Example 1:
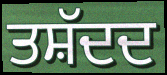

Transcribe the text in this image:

ਤਸ਼ੱਦਦ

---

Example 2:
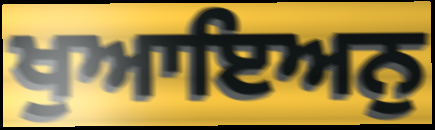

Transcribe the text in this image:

ਖੁਆਇਅਨੁ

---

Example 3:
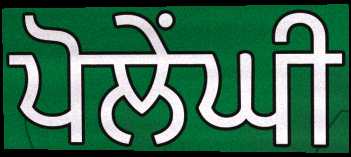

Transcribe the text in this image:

ਪੋਲੇਂਘੀ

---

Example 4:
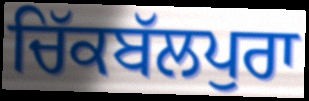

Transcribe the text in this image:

ਚਿੱਕਬੱਲਪੁਰਾ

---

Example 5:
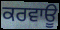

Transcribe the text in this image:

ਕਰਵਾਊ